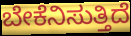
ಬೇಕೆನಿಸುತ್ತಿದೆ